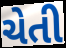
ચેતી